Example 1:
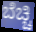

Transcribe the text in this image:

ಬೆಚ್ಚಿ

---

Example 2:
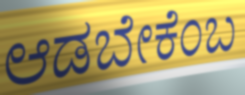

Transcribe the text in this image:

ಆಡಬೇಕೆಂಬ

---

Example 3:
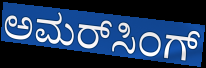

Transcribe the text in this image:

ಅಮರ್‌ಸಿಂಗ್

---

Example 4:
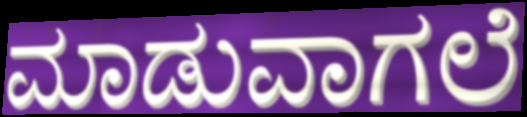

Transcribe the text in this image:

ಮಾಡುವಾಗಲೆ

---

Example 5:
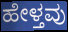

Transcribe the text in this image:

ಹೇಳ್ತವು